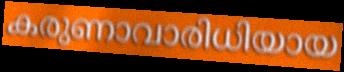
കരുണാവാരിധിയായ